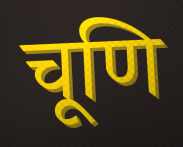
चूणि